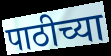
पाठीच्या